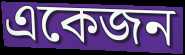
একেজন